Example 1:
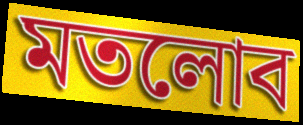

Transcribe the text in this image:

মতলোব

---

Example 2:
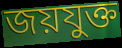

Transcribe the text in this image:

জয়যুক্ত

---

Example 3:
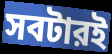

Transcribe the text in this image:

সবটারই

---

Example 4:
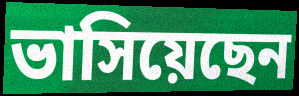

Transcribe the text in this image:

ভাসিয়েছেন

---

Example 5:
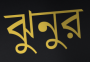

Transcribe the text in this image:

ঝুনুর